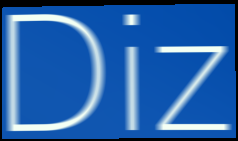
Diz